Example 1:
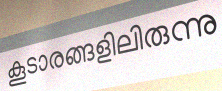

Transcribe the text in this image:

കൂടാരങ്ങളിലിരുന്നു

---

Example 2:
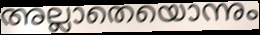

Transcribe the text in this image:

അല്ലാതെയൊന്നും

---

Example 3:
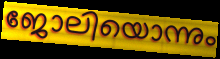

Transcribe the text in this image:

ജോലിയൊന്നും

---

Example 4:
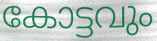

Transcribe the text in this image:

കോട്ടവും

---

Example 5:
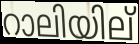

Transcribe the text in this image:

റാലിയില്